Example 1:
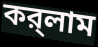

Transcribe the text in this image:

কর্‌লাম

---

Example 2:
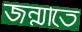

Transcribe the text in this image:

জন্মাতে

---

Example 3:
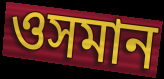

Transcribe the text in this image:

ওসমান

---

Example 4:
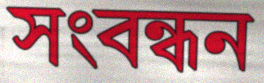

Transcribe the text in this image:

সংবন্ধন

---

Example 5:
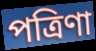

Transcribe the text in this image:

পত্রিণা